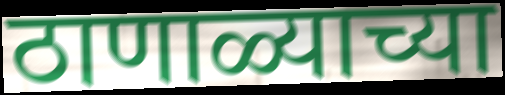
ठाणाळ्याच्या